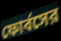
ফোর্বসের